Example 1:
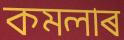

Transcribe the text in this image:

কমলাৰ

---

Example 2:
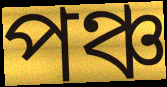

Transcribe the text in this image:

পঞ্চ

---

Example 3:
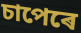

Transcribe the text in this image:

চাপেৰে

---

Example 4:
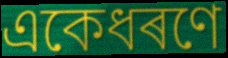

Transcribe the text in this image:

একেধৰণে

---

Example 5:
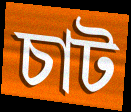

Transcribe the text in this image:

চাট